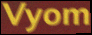
Vyom